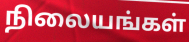
நிலையங்கள்